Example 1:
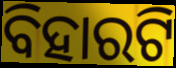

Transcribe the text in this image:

ବିହାରଟି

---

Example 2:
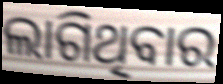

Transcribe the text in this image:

ଲାଗିଥିବାର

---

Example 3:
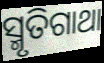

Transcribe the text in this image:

ସ୍ମୃତିଗାଥା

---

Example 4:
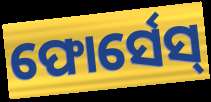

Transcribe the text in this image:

ଫୋର୍ସେସ୍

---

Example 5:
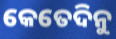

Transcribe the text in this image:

କେତେଦିନୁ